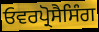
ਓਵਰਪ੍ਰੋਸੈਸਿੰਗ